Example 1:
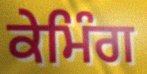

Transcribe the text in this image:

ਕੇਮਿੰਗ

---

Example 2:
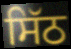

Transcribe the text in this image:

ਸਿੱਠ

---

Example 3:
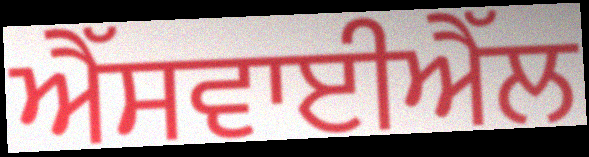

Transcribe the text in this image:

ਐੱਸਵਾਈਐੱਲ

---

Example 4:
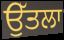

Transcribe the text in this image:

ਉੱਤਲਾ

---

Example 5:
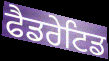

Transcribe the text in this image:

ਫੈਡਰੇਟਿਡ